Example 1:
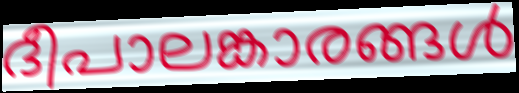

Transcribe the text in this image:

ദീപാലങ്കാരങ്ങൾ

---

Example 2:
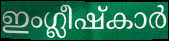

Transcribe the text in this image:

ഇംഗ്ലീഷ്കാർ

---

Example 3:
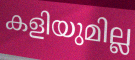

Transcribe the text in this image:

കളിയുമില്ല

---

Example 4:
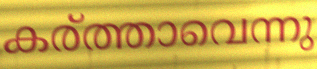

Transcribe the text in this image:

കര്ത്താവെന്നു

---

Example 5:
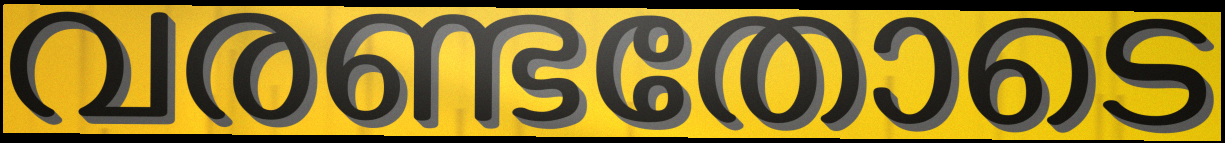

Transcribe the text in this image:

വരണ്ടതോടെ